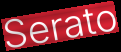
Serato